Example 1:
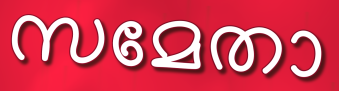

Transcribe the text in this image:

സമേതാ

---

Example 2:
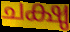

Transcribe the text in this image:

ചക്ഷു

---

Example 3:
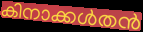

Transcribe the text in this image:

കിനാക്കൾതൻ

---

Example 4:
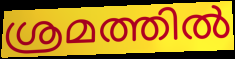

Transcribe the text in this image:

ശ്രമത്തിൽ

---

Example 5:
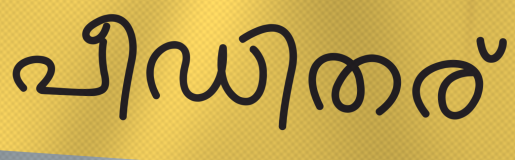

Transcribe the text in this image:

പീഡിതര്